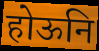
होऊनि